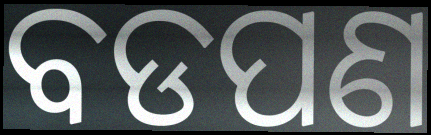
ବଡପଣ